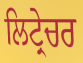
ਲਿਟ੍ਰੇਚਰ